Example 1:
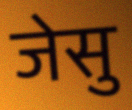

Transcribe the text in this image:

जेसु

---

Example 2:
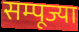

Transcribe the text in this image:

सम्पूज्या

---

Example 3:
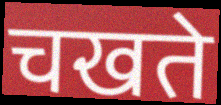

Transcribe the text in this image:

चखते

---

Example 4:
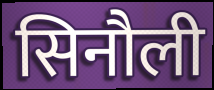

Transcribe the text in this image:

सिनौली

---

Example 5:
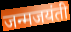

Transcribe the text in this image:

जन्मजयंती